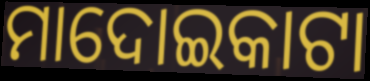
ମାଦୋଇକାଟା